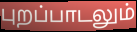
புறப்பாடலும்